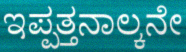
ಇಪ್ಪತ್ತನಾಲ್ಕನೇ